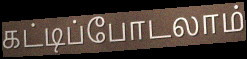
கட்டிப்போடலாம்